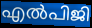
എൽപിജി